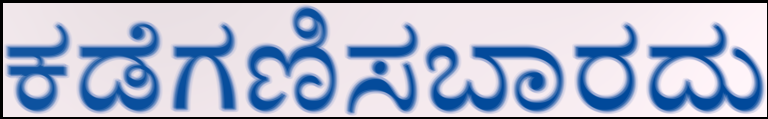
ಕಡೆಗಣಿಸಬಾರದು